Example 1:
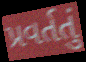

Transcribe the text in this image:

પ્રવર્તતું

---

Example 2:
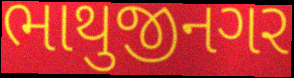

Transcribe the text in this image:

ભાથુજીનગર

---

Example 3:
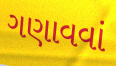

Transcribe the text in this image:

ગણાવવાં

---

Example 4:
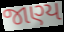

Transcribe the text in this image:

જાણ્ય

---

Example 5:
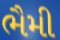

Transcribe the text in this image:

ભૈમી